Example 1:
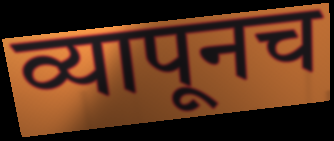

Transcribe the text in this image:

व्यापूनच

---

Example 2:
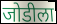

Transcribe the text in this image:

जोडीला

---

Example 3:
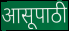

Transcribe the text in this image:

आसूपाठी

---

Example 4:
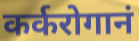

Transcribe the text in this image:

कर्करोगानं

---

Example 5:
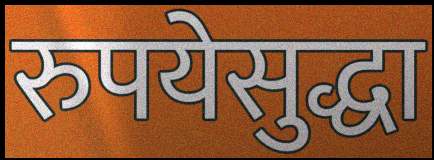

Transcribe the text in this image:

रुपयेसुद्धा